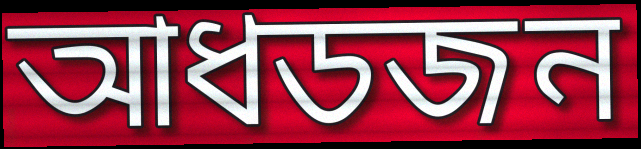
আধডজন